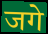
जगे